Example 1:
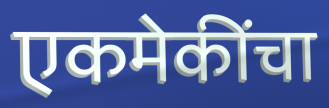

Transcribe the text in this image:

एकमेकींचा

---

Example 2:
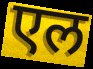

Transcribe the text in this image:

एल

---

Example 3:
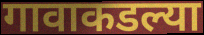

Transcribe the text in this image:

गावाकडल्या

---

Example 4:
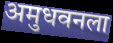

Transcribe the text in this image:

अमुधवनला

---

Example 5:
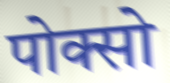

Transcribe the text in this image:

पोक्सो